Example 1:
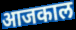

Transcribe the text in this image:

आजकाल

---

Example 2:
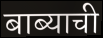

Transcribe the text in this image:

बाब्याची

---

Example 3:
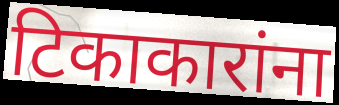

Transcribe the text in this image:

टिकाकारांना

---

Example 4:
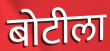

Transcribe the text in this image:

बोटीला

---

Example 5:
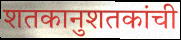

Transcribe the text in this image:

शतकानुशतकांची